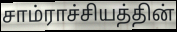
சாம்ராச்சியத்தின்